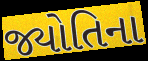
જ્યોતિના